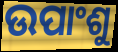
ଉପାଂଶୁ